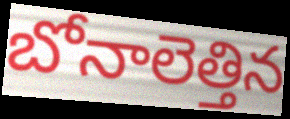
బోనాలెత్తిన